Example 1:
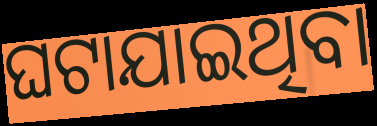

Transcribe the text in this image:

ଘଟାଯାଇଥିବା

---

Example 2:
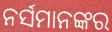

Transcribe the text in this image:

ନର୍ସମାନଙ୍କର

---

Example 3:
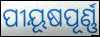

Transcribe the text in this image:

ପୀୟୂଷପୂର୍ଣ୍ଣ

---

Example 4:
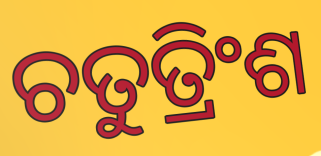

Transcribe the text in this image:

ଚତୁତ୍ରିଂଶ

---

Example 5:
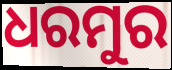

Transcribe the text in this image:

ଧରମୁର